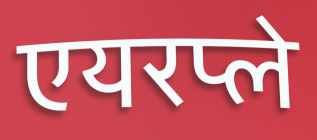
एयरप्ले